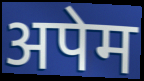
अपेम